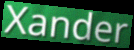
Xander